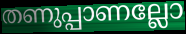
തണുപ്പാണല്ലോ